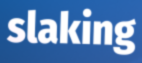
slaking